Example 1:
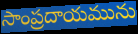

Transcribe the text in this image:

సాంప్రదాయమును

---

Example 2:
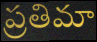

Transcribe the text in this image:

ప్రతిమా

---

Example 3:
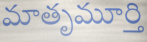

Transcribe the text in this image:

మాతృమూర్తి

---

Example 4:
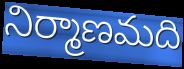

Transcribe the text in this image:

నిర్మాణమది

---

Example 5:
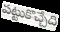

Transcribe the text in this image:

పట్టుకొచ్చేది